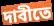
দাবীতে